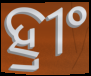
ହ୍ରୀଂ